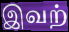
இவற்